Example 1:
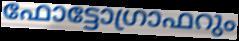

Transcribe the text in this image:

ഫോട്ടോഗ്രാഫറും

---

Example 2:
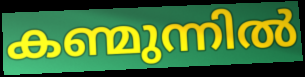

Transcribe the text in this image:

കണ്മുന്നിൽ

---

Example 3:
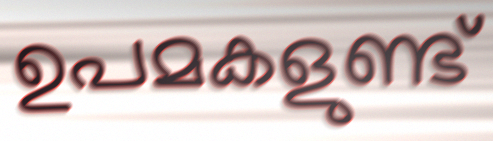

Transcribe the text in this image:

ഉപമകളുണ്ട്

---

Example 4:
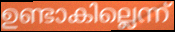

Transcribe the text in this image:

ഉണ്ടാകില്ലെന്ന്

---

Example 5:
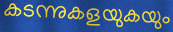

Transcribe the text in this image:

കടന്നുകളയുകയും